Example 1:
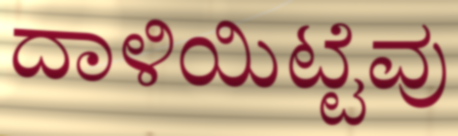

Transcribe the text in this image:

ದಾಳಿಯಿಟ್ಟೆವು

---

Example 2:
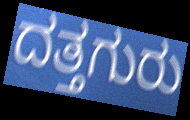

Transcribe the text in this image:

ದತ್ತಗುರು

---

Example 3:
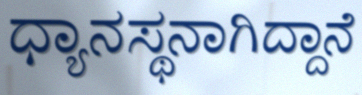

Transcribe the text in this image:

ಧ್ಯಾನಸ್ಥನಾಗಿದ್ದಾನೆ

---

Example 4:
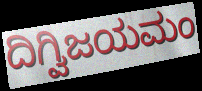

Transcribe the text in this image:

ದಿಗ್ವಿಜಯಮಂ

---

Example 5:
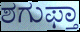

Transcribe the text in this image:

ಶಗುಫ್ತಾ